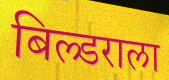
बिल्डराला